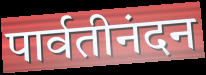
पार्वतीनंदन